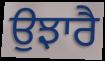
ਉਝਾਰੈ